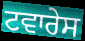
ਟਵਾਰੇਸ